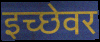
इच्छेवर